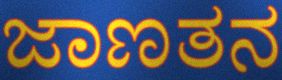
ಜಾಣತನ